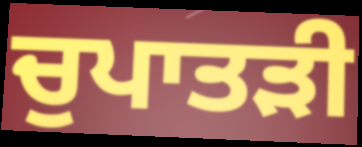
ਚੁਪਾਤੜੀ